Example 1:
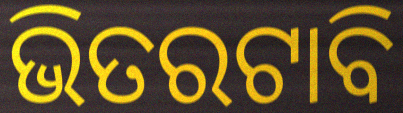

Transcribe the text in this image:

ଭିତରଟାବି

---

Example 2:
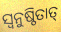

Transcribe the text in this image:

ସ୍ଵନୁଷ୍ଠିତାତ୍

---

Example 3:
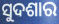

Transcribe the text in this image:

ସୁଦଶାର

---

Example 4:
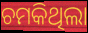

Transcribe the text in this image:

ଚମକିଥିଲା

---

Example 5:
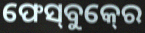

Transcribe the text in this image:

ଫେସ୍‍ବୁକ୍‍ରେ